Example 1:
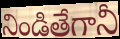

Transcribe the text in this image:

నిండితేగానీ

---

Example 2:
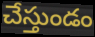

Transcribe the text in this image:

చేస్తుండం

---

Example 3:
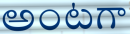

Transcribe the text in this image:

అంటగా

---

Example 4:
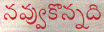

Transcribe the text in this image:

నవ్వుకొన్నది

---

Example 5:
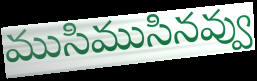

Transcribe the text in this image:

ముసిముసినవ్వు